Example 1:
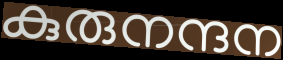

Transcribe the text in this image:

കുരുനന്ദന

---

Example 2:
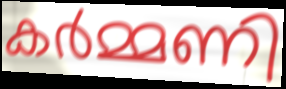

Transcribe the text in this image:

കർമ്മണി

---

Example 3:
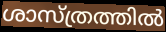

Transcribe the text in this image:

ശാസ്ത്രത്തിൽ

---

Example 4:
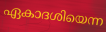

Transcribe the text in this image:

ഏകാദശിയെന്ന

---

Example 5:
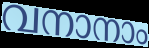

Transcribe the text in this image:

വനാനാം